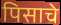
पिसाचे